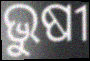
ଭୁଷୀ